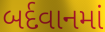
બર્દવાનમાં